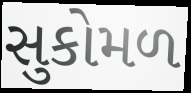
સુકોમળ